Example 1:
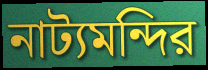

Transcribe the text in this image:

নাট্যমন্দির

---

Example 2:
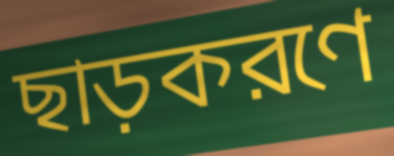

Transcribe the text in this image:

ছাড়করণে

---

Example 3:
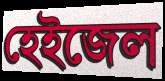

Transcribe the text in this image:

হেইজেল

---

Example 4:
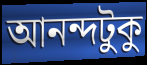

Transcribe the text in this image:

আনন্দটুকু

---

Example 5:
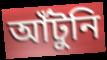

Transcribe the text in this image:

আঁটুনি